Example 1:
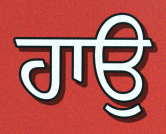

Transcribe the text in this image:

ਹਾਉ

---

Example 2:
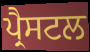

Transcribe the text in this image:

ਪ੍ਰੈਸਟਲ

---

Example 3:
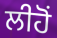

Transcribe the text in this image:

ਲੀਹੋਂ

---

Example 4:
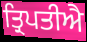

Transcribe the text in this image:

ਤ੍ਰਿਪਤੀਐ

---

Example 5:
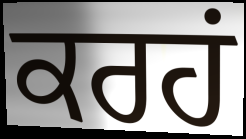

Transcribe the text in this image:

ਕਰਹਂ